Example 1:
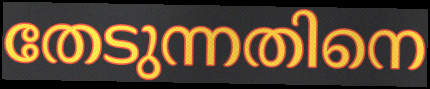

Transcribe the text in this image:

തേടുന്നതിനെ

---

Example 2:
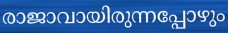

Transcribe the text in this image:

രാജാവായിരുന്നപ്പോഴും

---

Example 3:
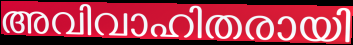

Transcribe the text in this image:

അവിവാഹിതരായി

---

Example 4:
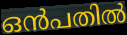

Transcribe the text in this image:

ഒൻപതിൽ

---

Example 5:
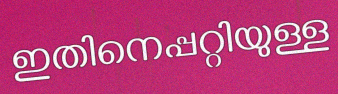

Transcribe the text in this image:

ഇതിനെപ്പറ്റിയുള്ള